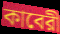
কাবেরী